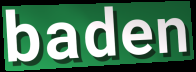
baden